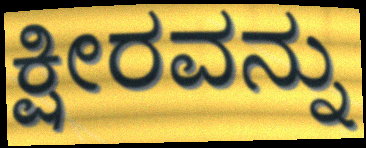
ಕ್ಷೀರವನ್ನು